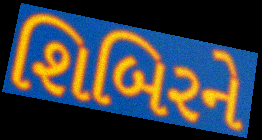
શિબિરને